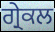
ਗ੍ਰੇਕਲ